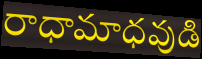
రాధామాధవుడి